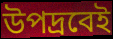
উপদ্রবেই